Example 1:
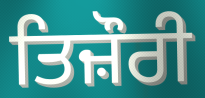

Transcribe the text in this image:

ਤਿਜ਼ੌਰੀ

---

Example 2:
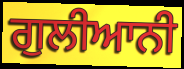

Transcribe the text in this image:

ਗੁਲੀਆਨੀ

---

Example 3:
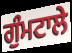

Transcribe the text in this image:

ਗੁੰਮਟਾਲੇ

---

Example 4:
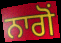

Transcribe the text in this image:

ਨਾਗੋਂ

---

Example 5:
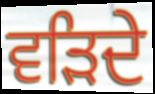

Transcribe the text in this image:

ਵੜਿਦੇ